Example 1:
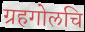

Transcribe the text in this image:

ग्रहगोलचि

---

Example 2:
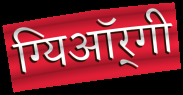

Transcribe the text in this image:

ग्यिऑर्गी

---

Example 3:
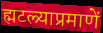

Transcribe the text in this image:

ह्मटल्याप्रमाणें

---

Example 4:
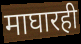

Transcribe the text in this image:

माघारही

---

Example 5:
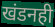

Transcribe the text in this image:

खंडनही